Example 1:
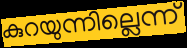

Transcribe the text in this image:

കുറയുന്നില്ലെന്ന്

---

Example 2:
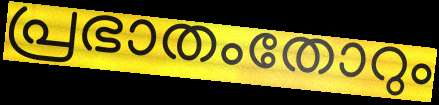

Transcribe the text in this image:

പ്രഭാതംതോറും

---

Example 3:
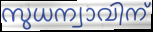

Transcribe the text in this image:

സുധന്വാവിന്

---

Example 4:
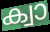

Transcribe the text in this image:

ക്വാ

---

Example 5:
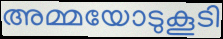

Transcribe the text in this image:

അമ്മയോടുകൂടി